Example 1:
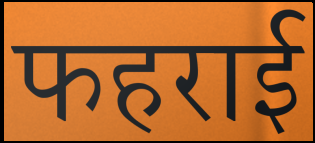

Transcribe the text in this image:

फहराई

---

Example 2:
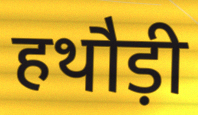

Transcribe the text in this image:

हथौड़ी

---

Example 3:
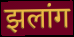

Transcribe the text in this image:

झलांग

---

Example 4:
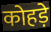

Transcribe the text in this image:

कोहड़े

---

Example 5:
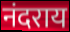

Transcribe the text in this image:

नंदराय